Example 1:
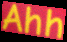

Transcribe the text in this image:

Ahh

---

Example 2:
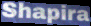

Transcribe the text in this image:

Shapira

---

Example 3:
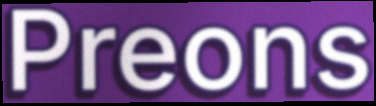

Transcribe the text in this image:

Preons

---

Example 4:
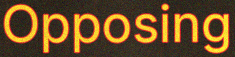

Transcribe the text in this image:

Opposing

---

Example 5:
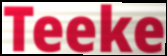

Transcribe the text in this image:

Teeke